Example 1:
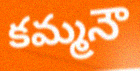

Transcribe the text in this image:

కమ్మనౌ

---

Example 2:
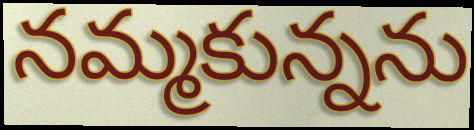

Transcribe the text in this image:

నమ్మకున్నను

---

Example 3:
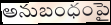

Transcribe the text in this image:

అనుబంధంపై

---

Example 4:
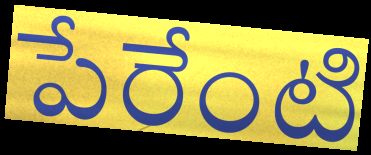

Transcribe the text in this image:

పేరేంటి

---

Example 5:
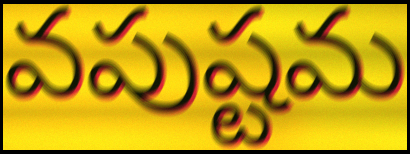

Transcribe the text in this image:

వపుష్టమ